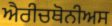
ਐਰੀਚਥੋਨੀਅਸ